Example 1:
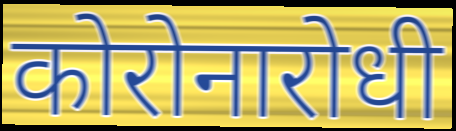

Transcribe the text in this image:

कोरोनारोधी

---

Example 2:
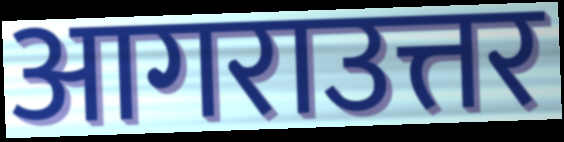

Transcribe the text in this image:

आगराउत्तर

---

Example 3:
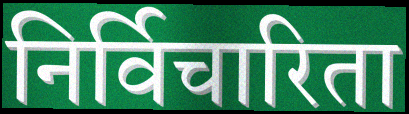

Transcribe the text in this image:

निर्विचारिता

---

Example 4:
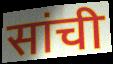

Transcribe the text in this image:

सांची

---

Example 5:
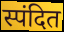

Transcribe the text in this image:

स्पंदित